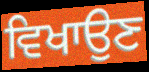
ਵਿਖਾਉਣ